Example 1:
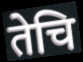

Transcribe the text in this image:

तेचि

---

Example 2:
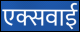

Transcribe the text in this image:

एक्सवाई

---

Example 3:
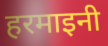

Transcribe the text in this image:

हरमाइनी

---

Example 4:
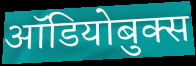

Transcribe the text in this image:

ऑडियोबुक्स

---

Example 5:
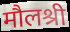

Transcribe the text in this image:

मौलश्री